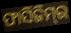
ଫାସିଜିମ୍‌ର